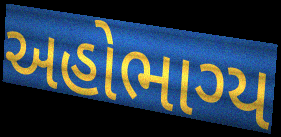
અહોભાગ્ય